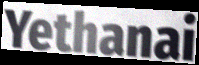
Yethanai